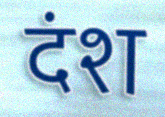
दंश